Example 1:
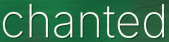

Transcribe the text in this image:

chanted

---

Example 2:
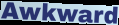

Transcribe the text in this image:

Awkward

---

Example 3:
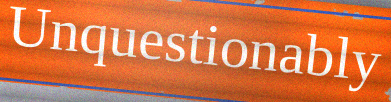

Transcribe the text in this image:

Unquestionably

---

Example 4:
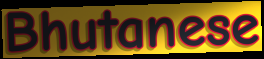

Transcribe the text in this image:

Bhutanese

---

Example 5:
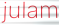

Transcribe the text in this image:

julam